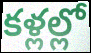
కళ్లల్లో